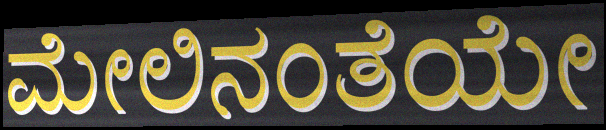
ಮೇಲಿನಂತೆಯೇ